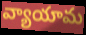
వ్యాయామ